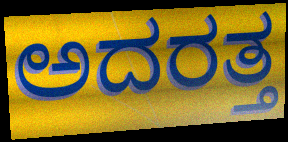
ಅದರತ್ತ